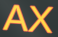
AX